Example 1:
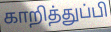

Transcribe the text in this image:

காறித்துப்பி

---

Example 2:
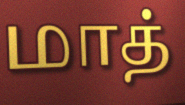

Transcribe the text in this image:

மாத்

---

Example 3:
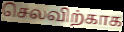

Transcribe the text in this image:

செலவிற்காக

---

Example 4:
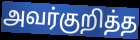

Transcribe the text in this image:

அவர்குறித்த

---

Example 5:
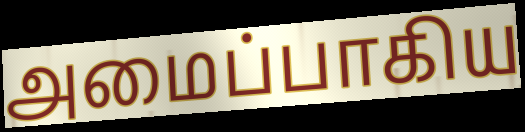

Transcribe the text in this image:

அமைப்பாகிய